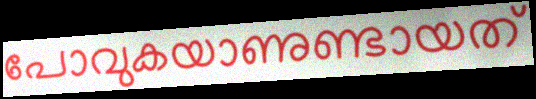
പോവുകയാണുണ്ടായത്